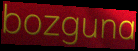
bozguna